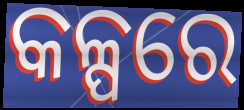
କଳ୍ପରେ